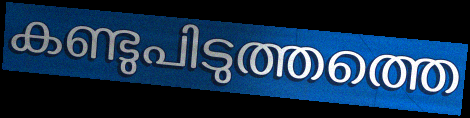
കണ്ടുപിടുത്തത്തെ